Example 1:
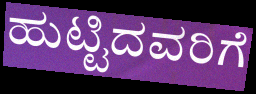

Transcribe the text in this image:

ಹುಟ್ಟಿದವರಿಗೆ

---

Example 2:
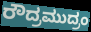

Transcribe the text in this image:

ರೌದ್ರಮುದ್ರಂ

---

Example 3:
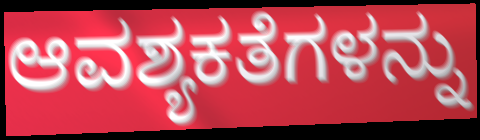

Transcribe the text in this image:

ಆವಶ್ಯಕತೆಗಳನ್ನು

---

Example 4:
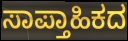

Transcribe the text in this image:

ಸಾಪ್ತಾಹಿಕದ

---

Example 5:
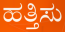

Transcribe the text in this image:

ಹತ್ತಿಸು